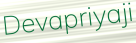
Devapriyaji